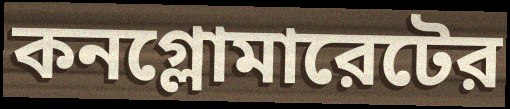
কনগ্লোমারেটের